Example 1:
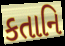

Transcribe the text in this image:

કતાનિ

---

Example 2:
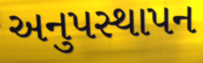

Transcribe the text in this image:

અનુપસ્થાપન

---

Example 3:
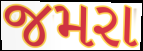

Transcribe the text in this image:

જમરા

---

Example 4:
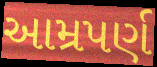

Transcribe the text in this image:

આમ્રપર્ણ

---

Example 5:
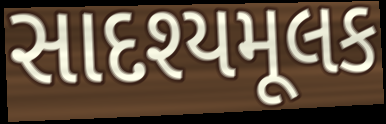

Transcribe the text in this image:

સાદશ્યમૂલક